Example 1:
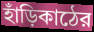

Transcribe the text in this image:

হাঁড়িকাঠের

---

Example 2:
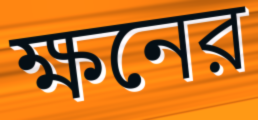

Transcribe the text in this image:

ক্ষনের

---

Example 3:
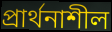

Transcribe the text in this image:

প্রার্থনাশীল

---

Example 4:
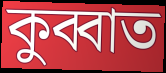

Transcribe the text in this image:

কুব্বাত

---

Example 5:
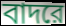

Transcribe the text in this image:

বাদরে